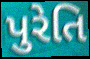
પુરેતિ